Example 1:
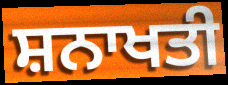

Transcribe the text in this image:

ਸ਼ਨਾਖਤੀ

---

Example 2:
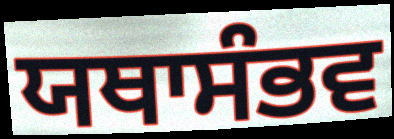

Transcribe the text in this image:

ਯਥਾਸੰਭਵ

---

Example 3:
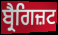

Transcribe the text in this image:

ਬ੍ਰੈਗਿਜ਼ਟ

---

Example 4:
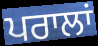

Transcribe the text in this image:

ਪਰਾਲਾਂ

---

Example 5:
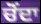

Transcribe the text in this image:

ਚੋਂਦਾ